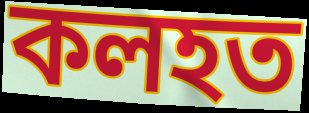
কলহত